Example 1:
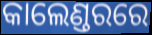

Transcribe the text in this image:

କାଲେଣ୍ଡରରେ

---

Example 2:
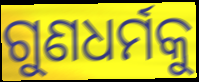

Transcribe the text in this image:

ଗୁଣଧର୍ମକୁ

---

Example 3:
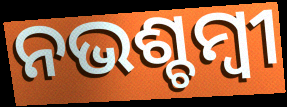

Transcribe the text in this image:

ନଭଶ୍ଚମ୍ବୀ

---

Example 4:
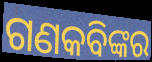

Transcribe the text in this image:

ଗଣକବିଙ୍କର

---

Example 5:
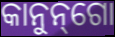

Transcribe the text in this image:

କାନୁନ୍‌ଗୋ